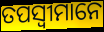
ତପସ୍ୱୀମାନେ